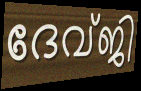
ദേവ്ജി